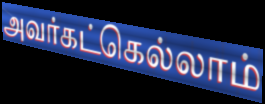
அவர்கட்கெல்லாம்